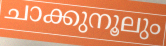
ചാക്കുനൂലും